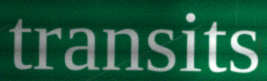
transits